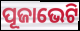
ପୂଜାଭେଟି